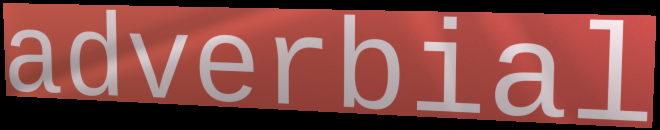
adverbial